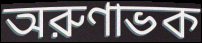
অৰুণাভক